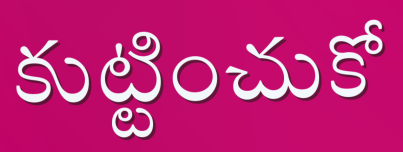
కుట్టించుకో